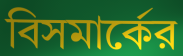
বিসমার্কের